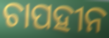
ଚାପହୀନ